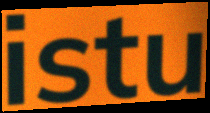
istu